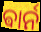
ଵାର୍ନ